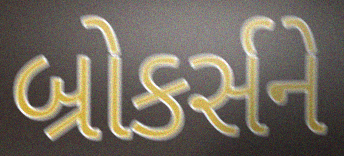
બ્રોકર્સને